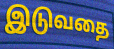
இடுவதை